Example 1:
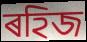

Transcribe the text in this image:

ৰহিজ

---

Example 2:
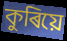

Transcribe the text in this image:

কুৰিয়ে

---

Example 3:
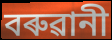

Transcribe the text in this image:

বৰুৱানী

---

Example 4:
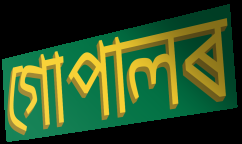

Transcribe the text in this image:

গোপালৰ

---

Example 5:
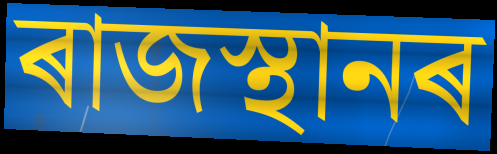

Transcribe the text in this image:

ৰাজস্থানৰ